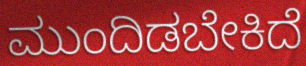
ಮುಂದಿಡಬೇಕಿದೆ